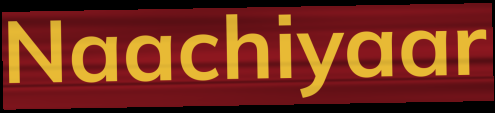
Naachiyaar